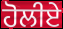
ਹੋਲੀਏ